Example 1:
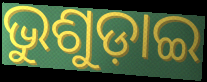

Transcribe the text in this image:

ଭୁଶୁଡ଼ାଇ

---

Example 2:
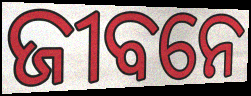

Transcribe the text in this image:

ଜୀବନେ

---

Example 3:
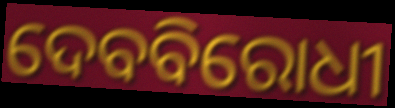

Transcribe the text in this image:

ଦେବବିରୋଧୀ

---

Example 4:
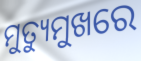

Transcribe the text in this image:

ମୁତ୍ୟୁମୁଖରେ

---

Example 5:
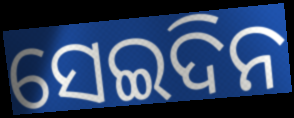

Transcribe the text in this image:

ସେଇଦିନ